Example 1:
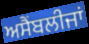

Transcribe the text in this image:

ਅਸੈਂਬਲੀਜਾਂ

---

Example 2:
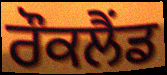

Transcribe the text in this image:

ਰੌਕਲੈਂਡ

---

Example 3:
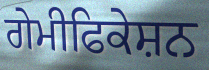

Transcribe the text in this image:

ਗੇਮੀਫਿਕੇਸ਼ਨ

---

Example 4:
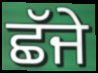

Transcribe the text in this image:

ਛੱਜੇ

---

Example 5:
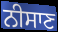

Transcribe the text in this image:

ਨੀਸਾਣ